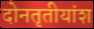
दोनतृतीयांश